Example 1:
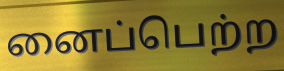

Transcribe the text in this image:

னைப்பெற்ற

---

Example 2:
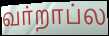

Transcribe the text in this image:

வர்றாப்ல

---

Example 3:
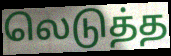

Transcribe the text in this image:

லெடுத்த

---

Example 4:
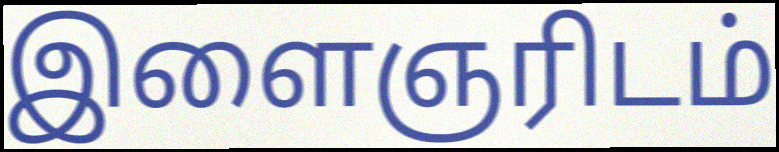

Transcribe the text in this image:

இளைஞரிடம்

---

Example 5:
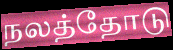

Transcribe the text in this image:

நலத்தோடு